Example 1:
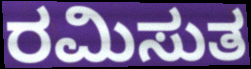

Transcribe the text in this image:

ರಮಿಸುತ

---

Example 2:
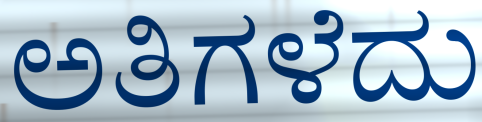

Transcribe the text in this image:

ಅತಿಗಳೆದು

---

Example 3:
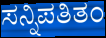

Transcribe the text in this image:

ಸನ್ನಿಪತಿತಂ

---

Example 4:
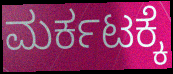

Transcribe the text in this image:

ಮರ್ಕಟಕ್ಕೆ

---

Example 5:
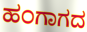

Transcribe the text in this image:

ಹಂಗಾಗದ